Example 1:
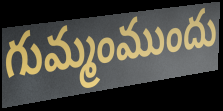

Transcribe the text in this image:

గుమ్మంముందు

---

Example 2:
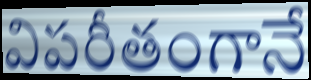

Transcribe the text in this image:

విపరీతంగానే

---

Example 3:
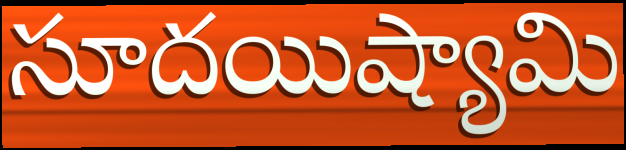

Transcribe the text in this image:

సూదయిష్యామి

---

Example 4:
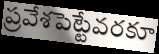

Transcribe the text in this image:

ప్రవేశపెట్టేవరకూ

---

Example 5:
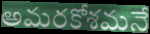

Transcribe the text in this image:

అమరకోశమనే